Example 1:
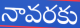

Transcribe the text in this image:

నావరకు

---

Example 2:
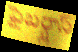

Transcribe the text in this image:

ఫైబర్గ్లాస్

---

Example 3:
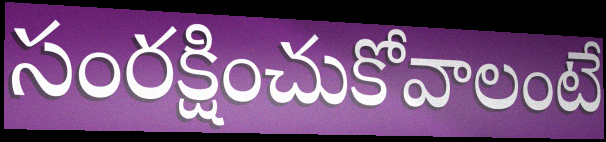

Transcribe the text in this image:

సంరక్షించుకోవాలంటే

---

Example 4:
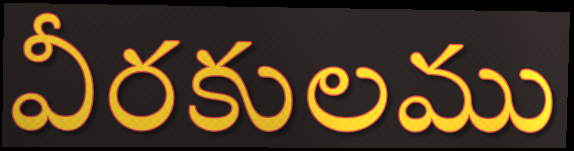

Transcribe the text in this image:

వీరకులము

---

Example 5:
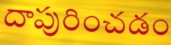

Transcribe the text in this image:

దాపురించడం